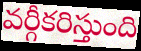
వర్గీకరిస్తుంది